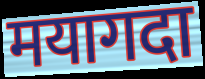
मयागदा